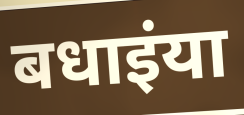
बधाइंया